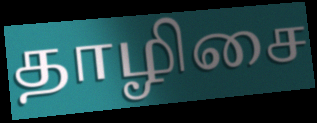
தாழிசை